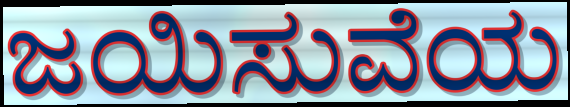
ಜಯಿಸುವೆಯ